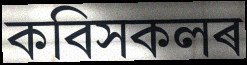
কবিসকলৰ